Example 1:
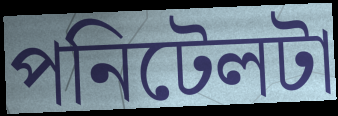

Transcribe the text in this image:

পনিটেলটা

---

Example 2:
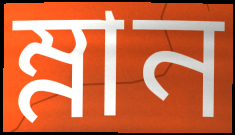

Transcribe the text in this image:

ম্নান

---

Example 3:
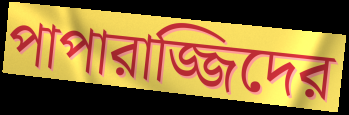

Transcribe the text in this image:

পাপারাজ্জিদের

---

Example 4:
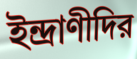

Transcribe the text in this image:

ইন্দ্রাণীদির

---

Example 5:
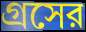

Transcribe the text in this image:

গ্রসের